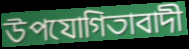
উপযোগিতাবাদী